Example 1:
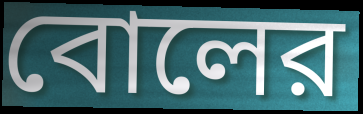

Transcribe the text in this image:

বোলের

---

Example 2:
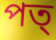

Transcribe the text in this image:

পত্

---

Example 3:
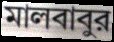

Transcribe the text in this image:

মালবাবুর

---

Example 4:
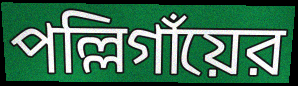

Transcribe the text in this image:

পল্লিগাঁয়ের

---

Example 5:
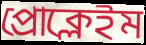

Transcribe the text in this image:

প্রোক্লেইম